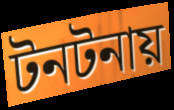
টনটনায়